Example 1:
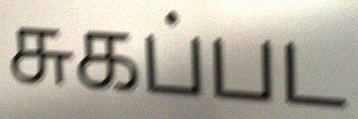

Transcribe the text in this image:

சுகப்பட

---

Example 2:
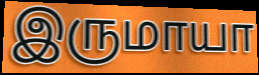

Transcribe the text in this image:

இருமாயா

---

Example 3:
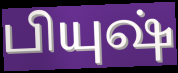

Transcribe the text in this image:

பியுஷ்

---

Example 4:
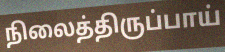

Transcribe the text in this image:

நிலைத்திருப்பாய்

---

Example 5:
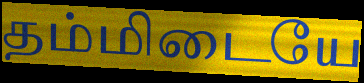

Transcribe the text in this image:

தம்மிடையே